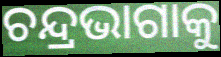
ଚନ୍ଦ୍ରଭାଗାକୁ